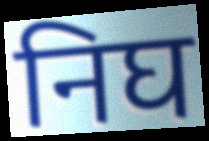
निघ